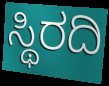
ಸ್ಥಿರದಿ